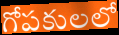
గోపకులలో